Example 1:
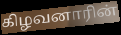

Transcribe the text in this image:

கிழவனாரின்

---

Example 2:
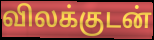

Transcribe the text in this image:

விலக்குடன்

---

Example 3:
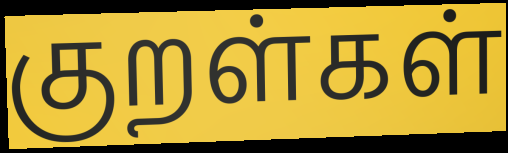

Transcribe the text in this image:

குறள்கள்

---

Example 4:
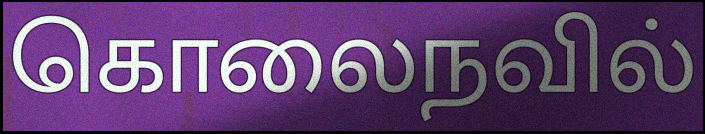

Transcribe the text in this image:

கொலைநவில்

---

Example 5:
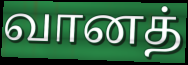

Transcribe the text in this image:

வானத்